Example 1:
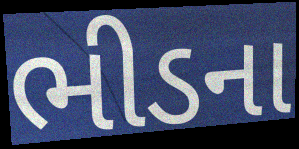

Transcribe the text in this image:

ભીડના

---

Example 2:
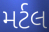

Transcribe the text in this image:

મર્ટલ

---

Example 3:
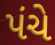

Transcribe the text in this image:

પંચે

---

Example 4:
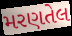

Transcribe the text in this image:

મરણતેલ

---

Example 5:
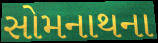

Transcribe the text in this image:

સોમનાથના